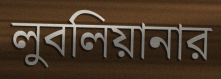
লুবলিয়ানার